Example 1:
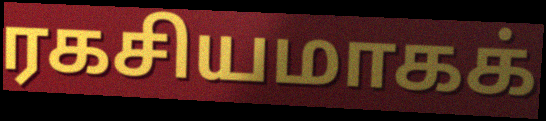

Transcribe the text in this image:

ரகசியமாகக்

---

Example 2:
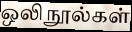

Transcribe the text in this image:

ஒலிநூல்கள்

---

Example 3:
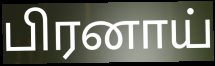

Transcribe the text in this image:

பிரனாய்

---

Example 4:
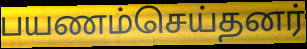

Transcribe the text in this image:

பயணம்செய்தனர்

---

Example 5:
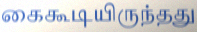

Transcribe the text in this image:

கைகூடியிருந்தது